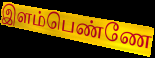
இளம்பெண்ணே